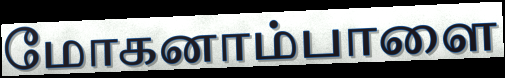
மோகனாம்பாளை